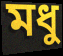
মধু